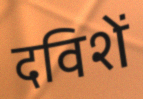
दविशें